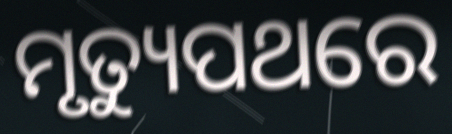
ମୃତ୍ୟୁପଥରେ